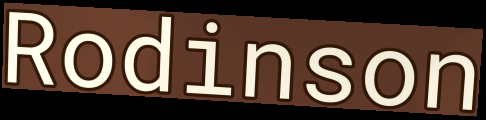
Rodinson